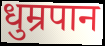
धुम्रपान